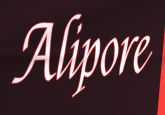
Alipore